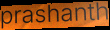
prashanth